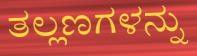
ತಲ್ಲಣಗಳನ್ನು